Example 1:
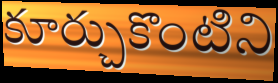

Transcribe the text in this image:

కూర్చుకొంటిని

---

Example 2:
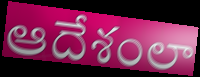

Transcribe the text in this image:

ఆదేశంలా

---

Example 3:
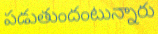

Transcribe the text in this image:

పడుతుందంటున్నారు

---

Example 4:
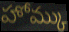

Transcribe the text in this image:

హోమ్కు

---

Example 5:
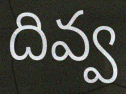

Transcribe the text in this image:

దివ్వ